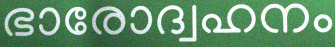
ഭാരോദ്വഹനം